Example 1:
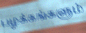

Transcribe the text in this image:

பழக்கங்களும்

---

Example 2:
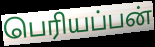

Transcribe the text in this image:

பெரியப்பன்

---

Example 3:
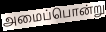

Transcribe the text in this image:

அமைப்பொன்று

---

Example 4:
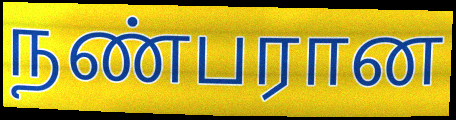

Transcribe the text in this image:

நண்பரான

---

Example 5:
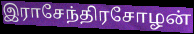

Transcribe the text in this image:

இராசேந்திரசோழன்